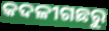
କଦଳୀଗଛରୁ